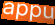
appu